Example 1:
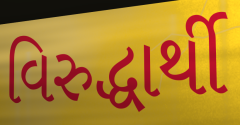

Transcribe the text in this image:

વિરુદ્ધાર્થી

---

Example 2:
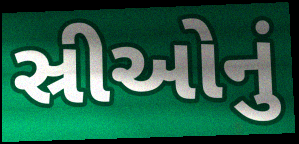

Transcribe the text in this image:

સ્રીઓનું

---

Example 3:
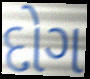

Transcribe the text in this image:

દોગ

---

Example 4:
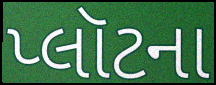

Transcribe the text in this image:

પ્લૉટના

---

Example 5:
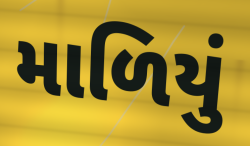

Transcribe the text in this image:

માળિયું